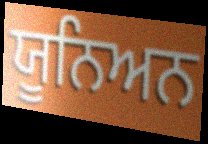
ਯੂਨਿਅਨ